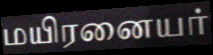
மயிரனையர்